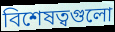
বিশেষত্বগুলো